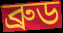
ব্রুড